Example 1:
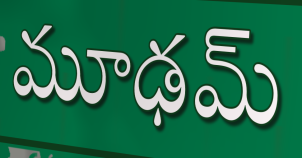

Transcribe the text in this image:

మూఢమ్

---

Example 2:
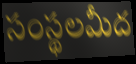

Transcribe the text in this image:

సంస్థలమీద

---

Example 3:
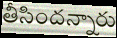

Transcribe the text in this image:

తీసిందన్నారు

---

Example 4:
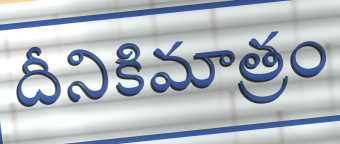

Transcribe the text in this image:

దీనికిమాత్రం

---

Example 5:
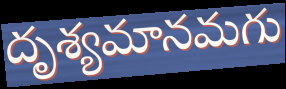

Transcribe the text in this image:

దృశ్యమానమగు